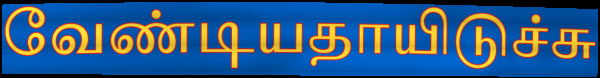
வேண்டியதாயிடுச்சு